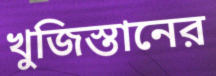
খুজিস্তানের